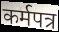
कर्मपत्र